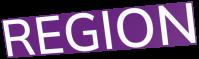
REGION